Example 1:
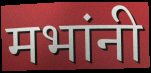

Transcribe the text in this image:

मभांनी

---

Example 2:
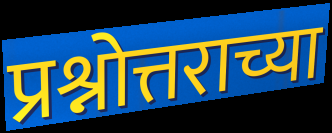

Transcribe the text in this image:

प्रश्नोत्तराच्या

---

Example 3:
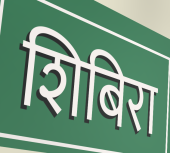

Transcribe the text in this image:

शिबिरा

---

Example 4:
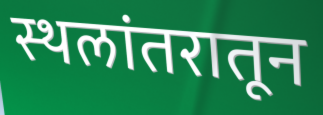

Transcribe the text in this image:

स्थलांतरातून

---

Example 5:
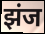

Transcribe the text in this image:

झंज